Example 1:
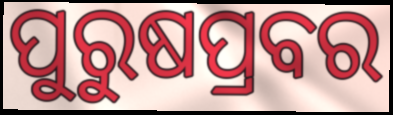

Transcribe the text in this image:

ପୁରୁଷପ୍ରବର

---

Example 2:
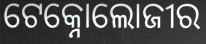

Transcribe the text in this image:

ଟେକ୍ନୋଲୋଜୀର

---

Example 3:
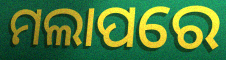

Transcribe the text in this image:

ମଲାପରେ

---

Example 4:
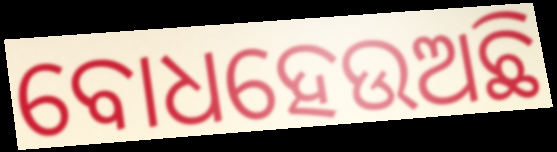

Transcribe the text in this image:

ବୋଧହେଉଅଛି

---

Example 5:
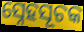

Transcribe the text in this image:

ସ୍ନେହସୂଚକ